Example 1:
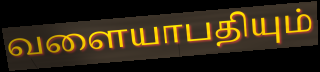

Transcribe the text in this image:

வளையாபதியும்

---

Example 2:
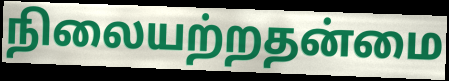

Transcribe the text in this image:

நிலையற்றதன்மை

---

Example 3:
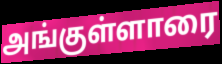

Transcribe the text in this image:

அங்குள்ளாரை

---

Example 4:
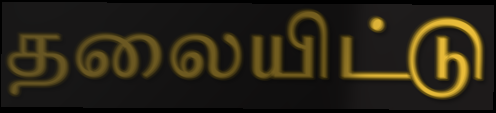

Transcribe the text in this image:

தலையிட்டு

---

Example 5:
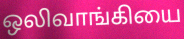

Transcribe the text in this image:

ஒலிவாங்கியை